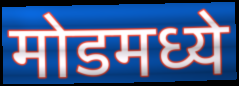
मोडमध्ये